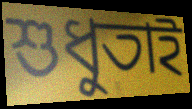
শুধুতাই